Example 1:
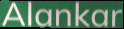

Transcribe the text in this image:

Alankar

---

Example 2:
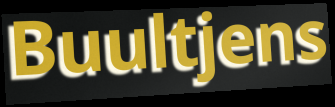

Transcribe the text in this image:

Buultjens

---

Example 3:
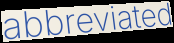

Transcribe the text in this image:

abbreviated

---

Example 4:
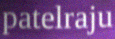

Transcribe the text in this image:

patelraju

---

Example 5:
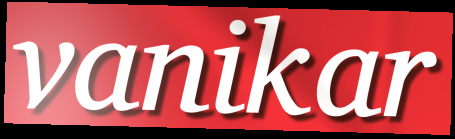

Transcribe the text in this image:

vanikar